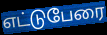
எட்டுபேரை